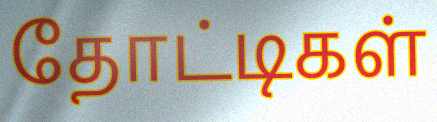
தோட்டிகள்